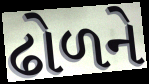
ઢોળને